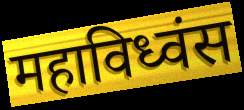
महाविध्वंस